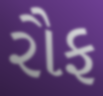
રૌફ